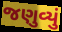
જણુવ્યું